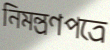
নিমন্ত্রণপত্রে